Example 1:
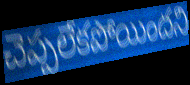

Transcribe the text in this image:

చెప్పలేకపోయిందని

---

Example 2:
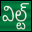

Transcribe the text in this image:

విల్ట్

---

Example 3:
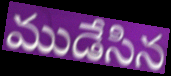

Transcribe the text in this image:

ముడేసిన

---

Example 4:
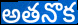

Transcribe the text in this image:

అతనొక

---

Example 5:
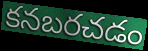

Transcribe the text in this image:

కనబరచడం